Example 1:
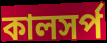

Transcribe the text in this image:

কালসর্প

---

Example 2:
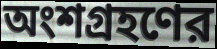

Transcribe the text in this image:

অংশগ্রহণের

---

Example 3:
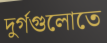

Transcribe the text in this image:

দুর্গগুলোতে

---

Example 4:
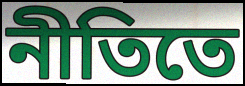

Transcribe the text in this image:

নীতিতে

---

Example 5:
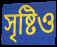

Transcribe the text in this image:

সৃষ্টিও